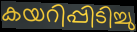
കയറിപ്പിടിച്ചു